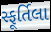
સ્ફૂર્તિલા